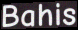
Bahis